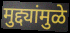
मुद्द्यांमुळे